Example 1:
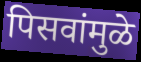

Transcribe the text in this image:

पिसवांमुळे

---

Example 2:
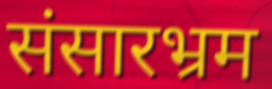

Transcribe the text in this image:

संसारभ्रम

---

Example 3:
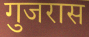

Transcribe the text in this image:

गुजरास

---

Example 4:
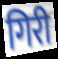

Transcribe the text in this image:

गिरी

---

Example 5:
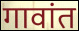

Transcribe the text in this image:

गावांत